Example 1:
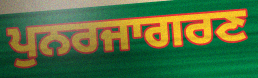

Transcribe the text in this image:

ਪੁਨਰਜਾਗਰਣ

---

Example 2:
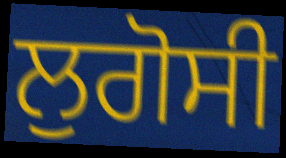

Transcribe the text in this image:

ਲੁਗੋਸੀ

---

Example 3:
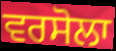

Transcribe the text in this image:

ਵਰਸੋਲਾ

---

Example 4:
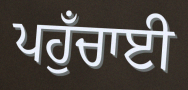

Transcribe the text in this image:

ਪਹੁਁਚਾਈ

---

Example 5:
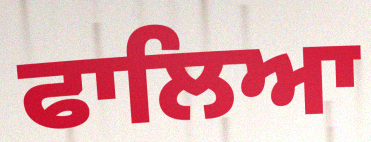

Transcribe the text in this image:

ਫਾਲਿਆ